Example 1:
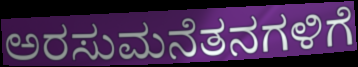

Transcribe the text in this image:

ಅರಸುಮನೆತನಗಳಿಗೆ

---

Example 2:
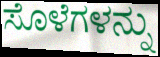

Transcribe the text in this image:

ಸೊಳೆಗಳನ್ನು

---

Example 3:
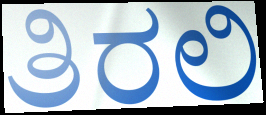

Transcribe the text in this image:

ತಿರಲಿ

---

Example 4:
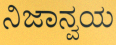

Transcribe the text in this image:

ನಿಜಾನ್ವಯ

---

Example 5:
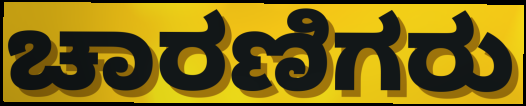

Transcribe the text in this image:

ಚಾರಣಿಗರು